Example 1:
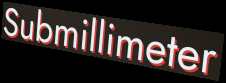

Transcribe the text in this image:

Submillimeter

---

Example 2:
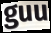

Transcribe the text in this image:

guu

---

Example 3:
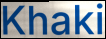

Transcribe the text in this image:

Khaki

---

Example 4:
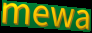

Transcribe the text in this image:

mewa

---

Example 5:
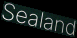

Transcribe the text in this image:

Sealand